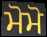
ਮੋਮੋ